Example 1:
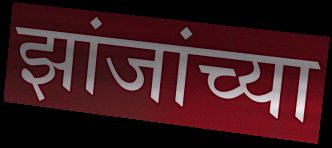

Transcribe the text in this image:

झांजांच्या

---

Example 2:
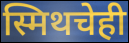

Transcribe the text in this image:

स्मिथचेही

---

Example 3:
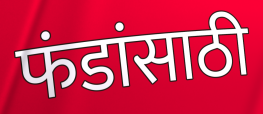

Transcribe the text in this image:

फंडांसाठी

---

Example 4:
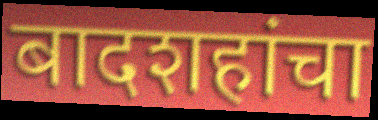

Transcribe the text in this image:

बादशहांचा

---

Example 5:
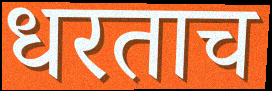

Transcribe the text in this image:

धरताच